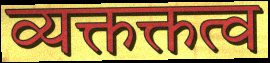
व्यक्तक्तत्व